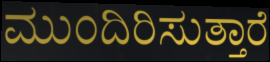
ಮುಂದಿರಿಸುತ್ತಾರೆ